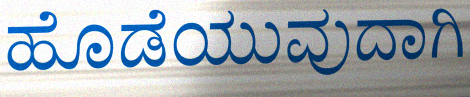
ಹೊಡೆಯುವುದಾಗಿ